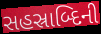
સહસ્રાબ્દિની